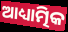
ଆଧ୍ୟାତ୍ମିକ